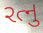
રત્નુ